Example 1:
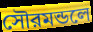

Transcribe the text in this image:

সৌরমন্ডলে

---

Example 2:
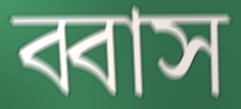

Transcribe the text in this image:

ব্বাস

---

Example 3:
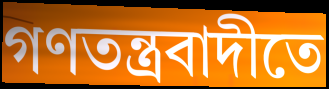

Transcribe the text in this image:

গণতন্ত্রবাদীতে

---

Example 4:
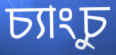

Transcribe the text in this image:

চ্যাংচু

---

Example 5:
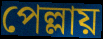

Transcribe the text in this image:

পেল্লায়